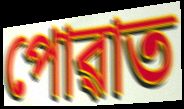
পোৱাত